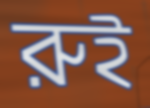
রুই